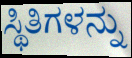
ಸ್ಥಿತಿಗಳನ್ನು